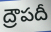
ద్రౌపదీ